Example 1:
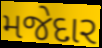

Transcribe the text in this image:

મજેદાર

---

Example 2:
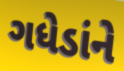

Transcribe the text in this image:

ગધેડાંને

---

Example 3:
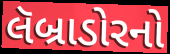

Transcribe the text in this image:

લૅબ્રાડોરનો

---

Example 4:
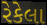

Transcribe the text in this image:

રેકેલા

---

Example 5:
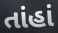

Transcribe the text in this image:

તાંહાં